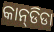
କାନ୍‌ଡିଡା